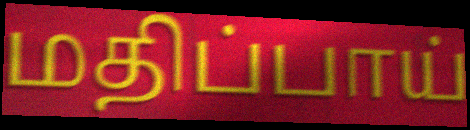
மதிப்பாய்